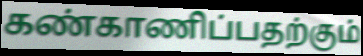
கண்காணிப்பதற்கும்